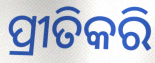
ପ୍ରୀତିକରି